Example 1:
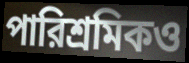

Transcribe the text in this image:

পারিশ্রমিকও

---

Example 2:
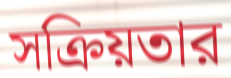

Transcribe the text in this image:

সক্রিয়তার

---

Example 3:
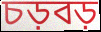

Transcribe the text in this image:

চড়বড়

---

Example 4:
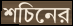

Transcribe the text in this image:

শচিনের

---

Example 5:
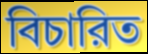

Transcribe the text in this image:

বিচারিত